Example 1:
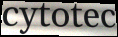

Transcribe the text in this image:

cytotec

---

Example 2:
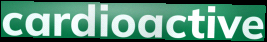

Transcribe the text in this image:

cardioactive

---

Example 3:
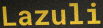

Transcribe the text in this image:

Lazuli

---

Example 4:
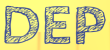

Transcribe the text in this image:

DEP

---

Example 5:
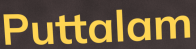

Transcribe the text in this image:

Puttalam